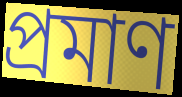
প্ৰমাণ